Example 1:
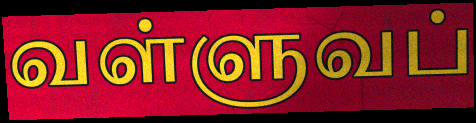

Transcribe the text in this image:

வள்ளுவப்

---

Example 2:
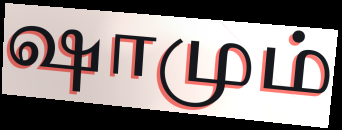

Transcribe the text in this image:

ஷாமும்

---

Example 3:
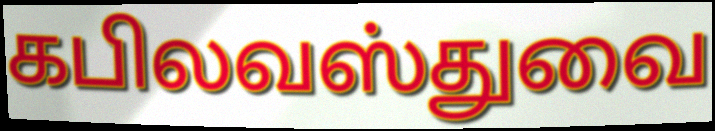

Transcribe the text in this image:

கபிலவஸ்துவை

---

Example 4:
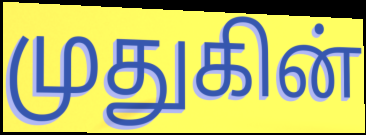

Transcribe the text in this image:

முதுகின்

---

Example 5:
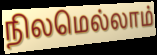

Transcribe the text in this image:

நிலமெல்லாம்